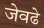
जेवढे